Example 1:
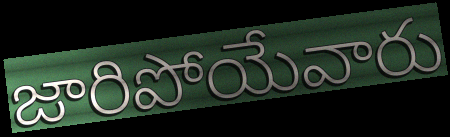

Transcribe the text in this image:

జారిపోయేవారు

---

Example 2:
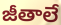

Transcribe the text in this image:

జీతాలే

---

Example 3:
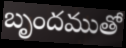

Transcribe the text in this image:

బృందముతో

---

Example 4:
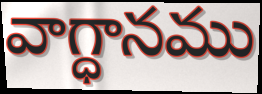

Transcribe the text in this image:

వాగ్ధానము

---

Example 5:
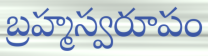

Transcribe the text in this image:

బ్రహ్మస్వరూపం